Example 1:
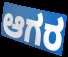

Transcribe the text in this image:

ಆಗರ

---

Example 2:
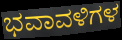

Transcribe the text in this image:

ಭವಾವಳಿಗಳ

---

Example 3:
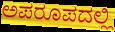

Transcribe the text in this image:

ಅಪರೂಪದಲ್ಲಿ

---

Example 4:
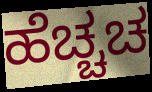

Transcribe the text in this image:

ಹೆಚ್ಚಚ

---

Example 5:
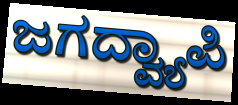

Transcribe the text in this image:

ಜಗದ್ವ್ಯಾಪಿ